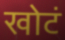
खोटं